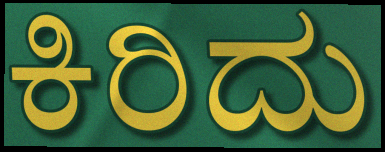
ಕಿರಿದು